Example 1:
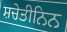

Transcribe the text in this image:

ਸ਼ਚੇਤੀਨਿਨ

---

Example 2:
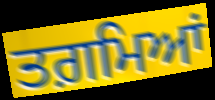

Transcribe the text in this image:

ਤਗ਼ਮਿਆਂ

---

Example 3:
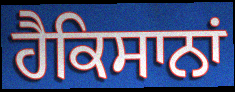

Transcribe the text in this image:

ਹੈਕਿਸਾਨਾਂ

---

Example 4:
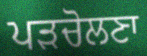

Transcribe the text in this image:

ਪੜਚੋਲਣਾ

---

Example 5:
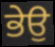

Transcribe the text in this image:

ਭੇਉ